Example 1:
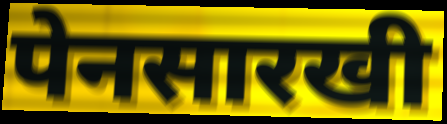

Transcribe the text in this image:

पेनसारखी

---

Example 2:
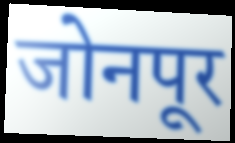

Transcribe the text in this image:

जोनपूर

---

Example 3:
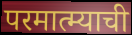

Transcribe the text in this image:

परमात्म्याची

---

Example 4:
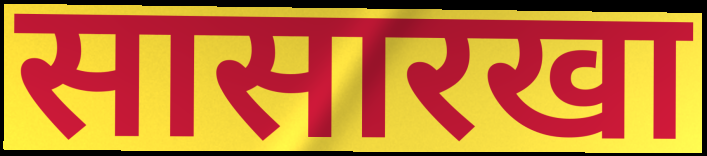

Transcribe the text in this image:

सासारखा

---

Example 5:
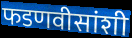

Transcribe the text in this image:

फडणवीसांशी